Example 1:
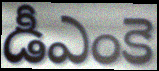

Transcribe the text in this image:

డీఎంకె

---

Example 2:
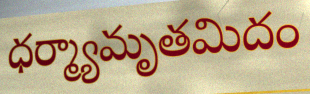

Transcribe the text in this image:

ధర్మ్యామృతమిదం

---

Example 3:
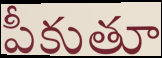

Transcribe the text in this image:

పీకుతూ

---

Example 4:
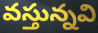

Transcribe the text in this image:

వస్తున్నవి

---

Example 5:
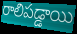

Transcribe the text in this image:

రాలిపడ్డాయి